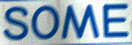
SOME